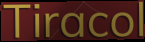
Tiracol